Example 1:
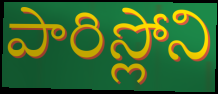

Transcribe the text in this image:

పారిస్లోని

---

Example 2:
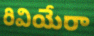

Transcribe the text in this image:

రివియేరా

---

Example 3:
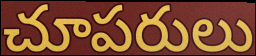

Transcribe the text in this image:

చూపరులు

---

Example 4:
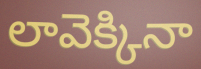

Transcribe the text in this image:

లావెక్కినా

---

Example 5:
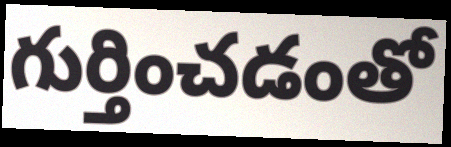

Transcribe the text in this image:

గుర్తించడంతో